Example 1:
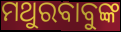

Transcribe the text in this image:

ମଥୁରବାବୁଙ୍କ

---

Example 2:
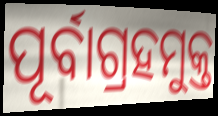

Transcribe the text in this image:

ପୂର୍ବାଗ୍ରହମୁକ୍ତ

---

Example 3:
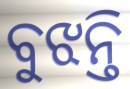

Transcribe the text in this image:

ବୁଝନ୍ତି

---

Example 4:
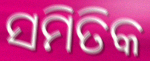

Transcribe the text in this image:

ସମିତିକ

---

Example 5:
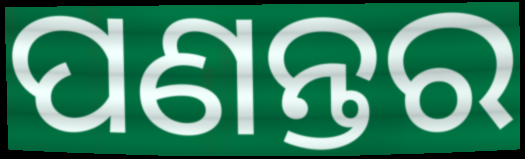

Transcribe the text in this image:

ପଣନ୍ତର